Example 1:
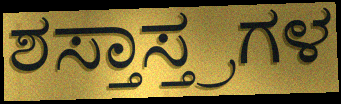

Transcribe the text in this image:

ಶಸ್ತಾಸ್ತ್ರಗಳ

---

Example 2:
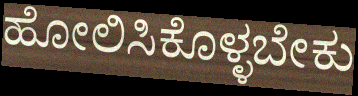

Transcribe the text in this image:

ಹೋಲಿಸಿಕೊಳ್ಳಬೇಕು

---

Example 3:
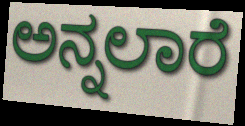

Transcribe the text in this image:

ಅನ್ನಲಾರೆ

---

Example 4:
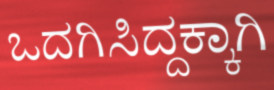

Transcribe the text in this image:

ಒದಗಿಸಿದ್ದಕ್ಕಾಗಿ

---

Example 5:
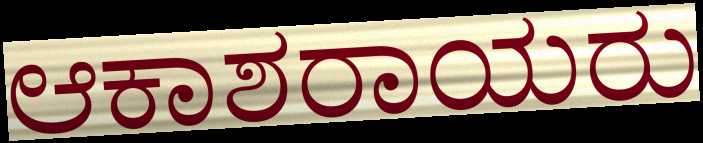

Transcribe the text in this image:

ಆಕಾಶರಾಯರು